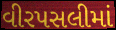
વીરપસલીમાં